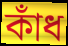
কাঁধ